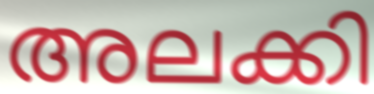
അലക്കി